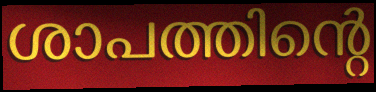
ശാപത്തിന്റെ